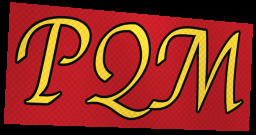
PQM